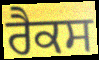
ਰੈਕਸ